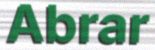
Abrar